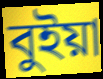
বুইয়া